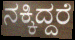
ನಕ್ಕಿದ್ದರೆ